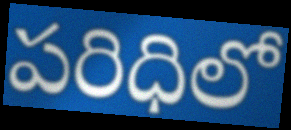
పరిధిలో